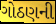
ગોઠણની